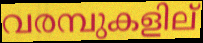
വരമ്പുകളില്